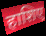
हाशिए